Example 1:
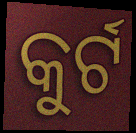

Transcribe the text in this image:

କୁର୍ଟ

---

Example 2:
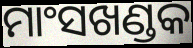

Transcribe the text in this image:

ମାଂସଖଣ୍ଡକ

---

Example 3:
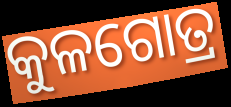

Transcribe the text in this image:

କୁଳଗୋତ୍ର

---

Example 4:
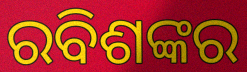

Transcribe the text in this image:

ରବିଶଙ୍କର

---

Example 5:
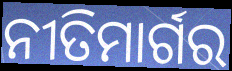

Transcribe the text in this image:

ନୀତିମାର୍ଗର